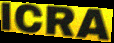
ICRA